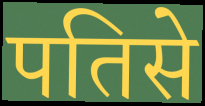
पतिसे